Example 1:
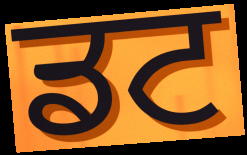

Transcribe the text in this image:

ਡਟ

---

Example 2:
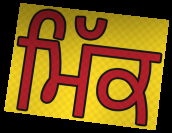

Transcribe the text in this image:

ਮਿੱਕ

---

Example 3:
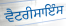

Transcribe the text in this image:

ਵੈਟਰੀਸਾਇੰਸ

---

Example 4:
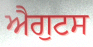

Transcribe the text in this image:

ਐਗੁਟਸ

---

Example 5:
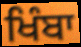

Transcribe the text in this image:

ਖਿੰਬਾ